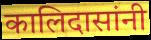
कालिदासांनी